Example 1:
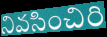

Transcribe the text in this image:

నివసించిరి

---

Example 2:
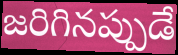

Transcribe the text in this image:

జరిగినప్పుడే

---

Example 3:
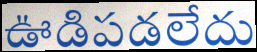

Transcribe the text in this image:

ఊడిపడలేదు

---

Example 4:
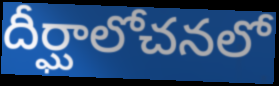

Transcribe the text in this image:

దీర్ఘాలోచనలో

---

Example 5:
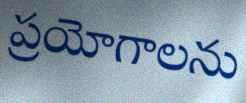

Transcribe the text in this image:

ప్రయోగాలను